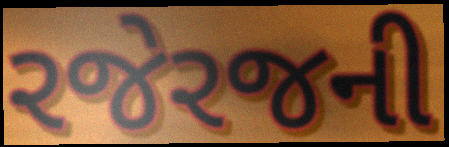
રજેરજની